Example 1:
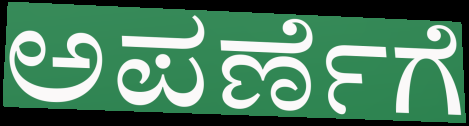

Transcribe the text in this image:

ಅಪರ್ಣೆಗೆ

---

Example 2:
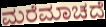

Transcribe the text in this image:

ಮರೆಮಾಚದೆ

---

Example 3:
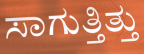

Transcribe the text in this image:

ಸಾಗುತ್ತಿತ್ತು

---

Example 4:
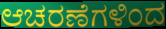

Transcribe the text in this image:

ಆಚರಣೆಗಳಿಂದ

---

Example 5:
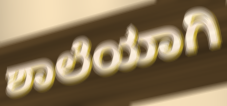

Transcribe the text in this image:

ಶಾಲೆಯಾಗಿ